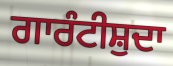
ਗਾਰੰਟੀਸ਼ੁਦਾ